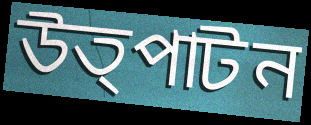
উত্পাটন